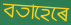
বতাহেৰে